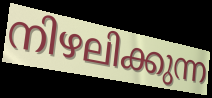
നിഴലിക്കുന്ന